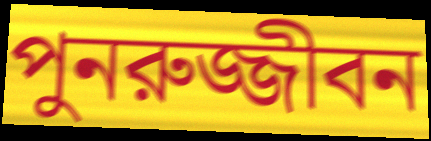
পুনরুজ্জীবন